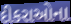
દીકરાઓના